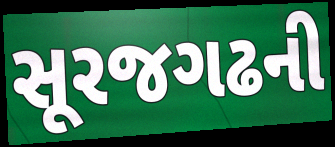
સૂરજગઢની